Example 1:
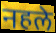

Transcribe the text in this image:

नहले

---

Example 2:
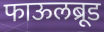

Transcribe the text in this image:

फाऊलब्रूड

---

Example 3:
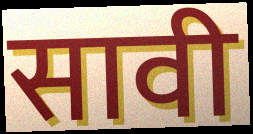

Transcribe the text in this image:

सावी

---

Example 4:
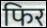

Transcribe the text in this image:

फिर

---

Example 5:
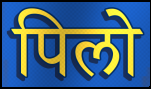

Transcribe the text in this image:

पिलो